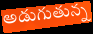
అడుగుతున్న